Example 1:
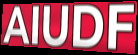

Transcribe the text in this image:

AIUDF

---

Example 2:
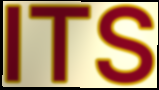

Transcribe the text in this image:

ITS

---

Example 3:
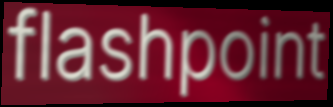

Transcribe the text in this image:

flashpoint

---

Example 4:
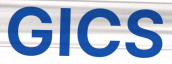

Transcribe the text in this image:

GICS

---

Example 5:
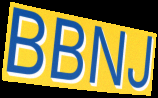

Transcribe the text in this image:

BBNJ